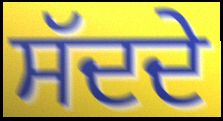
ਸੱਦਦੇ